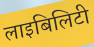
लाइबिलिटी